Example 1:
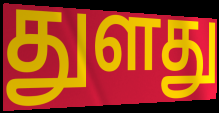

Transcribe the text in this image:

துளது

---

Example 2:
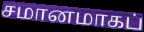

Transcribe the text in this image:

சமானமாகப்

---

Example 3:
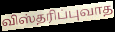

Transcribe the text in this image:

விஸ்தரிப்புவாத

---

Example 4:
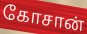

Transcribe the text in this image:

கோசான்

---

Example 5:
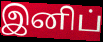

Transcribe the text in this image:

இனிப்